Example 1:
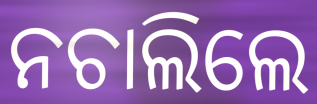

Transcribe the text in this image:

ନଚାଲିଲେ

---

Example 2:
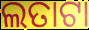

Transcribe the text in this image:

ଲତାଟା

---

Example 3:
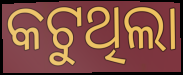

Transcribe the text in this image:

କଟୁଥିଲା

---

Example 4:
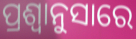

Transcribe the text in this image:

ପ୍ରଶ୍ବାନୁସାରେ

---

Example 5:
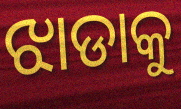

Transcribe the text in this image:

ଝାଡାକୁ